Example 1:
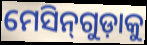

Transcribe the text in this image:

ମେସିନ୍‌ଗୁଡ଼ାକୁ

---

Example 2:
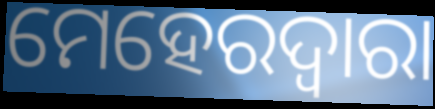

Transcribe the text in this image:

ମେହେରଦ୍ୱାରା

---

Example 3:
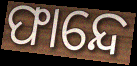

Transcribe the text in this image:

ଫାନ୍ଦେ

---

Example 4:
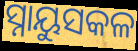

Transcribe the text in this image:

ସ୍ନାୟୁସକଳ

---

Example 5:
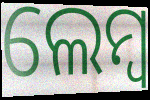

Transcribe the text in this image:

ଲେମ୍ବ